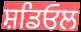
ਸ਼ਡਿਓਲ